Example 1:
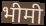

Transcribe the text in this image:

भीमी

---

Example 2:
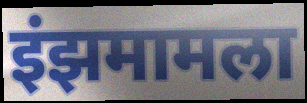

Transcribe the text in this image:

इंझमामला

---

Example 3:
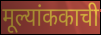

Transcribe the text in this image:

मूल्यांककाची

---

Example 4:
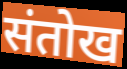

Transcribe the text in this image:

संतोख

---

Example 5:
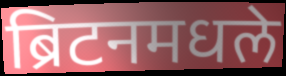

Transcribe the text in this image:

ब्रिटनमधले